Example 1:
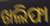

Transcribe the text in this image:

ଖଲିଫା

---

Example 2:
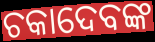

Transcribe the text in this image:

ଚକାଦେବଙ୍କ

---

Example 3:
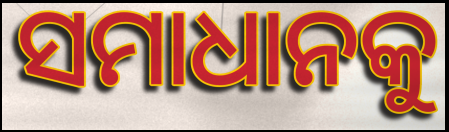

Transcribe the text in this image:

ସମାଧାନକୁ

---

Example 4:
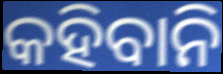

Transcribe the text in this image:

କହିବାନି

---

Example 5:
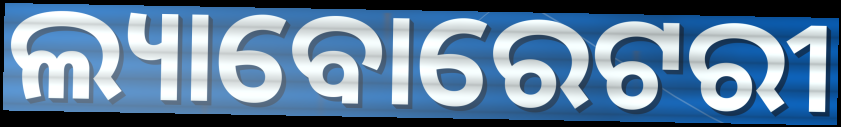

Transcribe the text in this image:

ଲ୍ୟାବୋରେଟରୀ